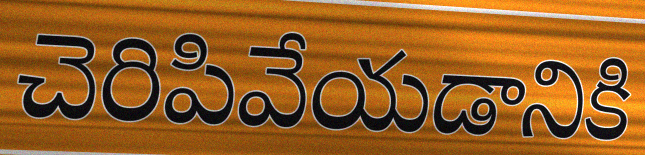
చెరిపివేయడానికి